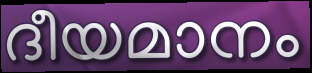
ദീയമാനം